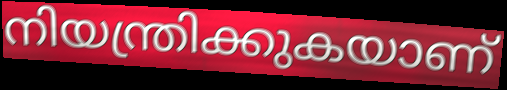
നിയന്ത്രിക്കുകയാണ്